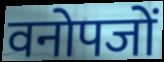
वनोपजों